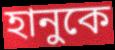
হানুকে